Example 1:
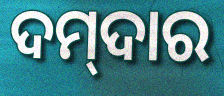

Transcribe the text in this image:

ଦମ୍‌ଦାର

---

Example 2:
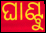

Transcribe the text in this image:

ଘାଣ୍ଟୁ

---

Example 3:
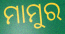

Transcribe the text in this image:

ମାମୁର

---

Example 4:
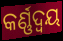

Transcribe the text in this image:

କର୍ଣ୍ଣଦ୍ୱୟ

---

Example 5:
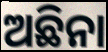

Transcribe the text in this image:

ଅଛିନା